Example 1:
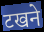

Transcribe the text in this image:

टखने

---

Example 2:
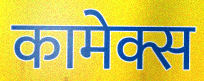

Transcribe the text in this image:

कामेक्स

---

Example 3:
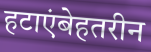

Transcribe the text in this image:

हटाएंबेहतरीन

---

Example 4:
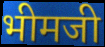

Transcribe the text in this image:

भीमजी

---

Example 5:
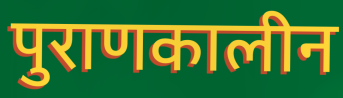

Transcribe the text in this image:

पुराणकालीन